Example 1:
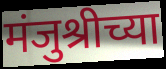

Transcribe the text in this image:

मंजुश्रीच्या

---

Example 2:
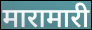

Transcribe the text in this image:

मारामारी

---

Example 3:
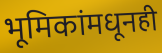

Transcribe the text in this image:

भूमिकांमधूनही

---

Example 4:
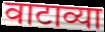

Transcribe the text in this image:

वाटाव्या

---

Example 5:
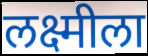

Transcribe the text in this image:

लक्ष्मीला